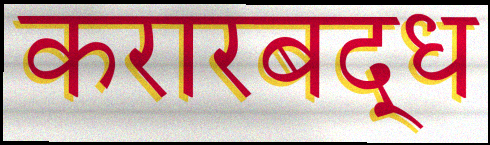
करारबद्ध